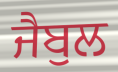
ਜੈਬੁਲ